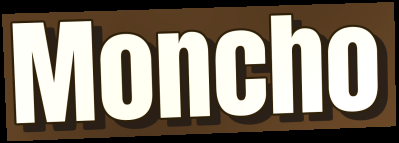
Moncho